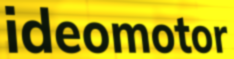
ideomotor